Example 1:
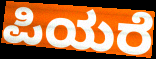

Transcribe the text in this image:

ಪಿಯರೆ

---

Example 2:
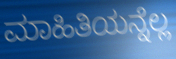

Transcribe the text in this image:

ಮಾಹಿತಿಯನ್ನೆಲ್ಲ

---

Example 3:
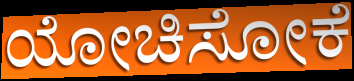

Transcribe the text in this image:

ಯೋಚಿಸೋಕೆ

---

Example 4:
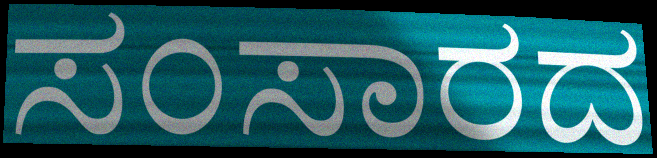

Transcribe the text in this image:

ಸಂಸಾರದ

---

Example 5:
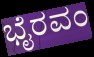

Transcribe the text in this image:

ಭೈರವಂ